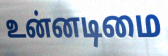
உன்னடிமை